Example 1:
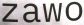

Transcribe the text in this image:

zawo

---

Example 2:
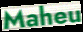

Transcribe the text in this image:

Maheu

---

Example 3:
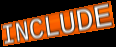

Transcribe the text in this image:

INCLUDE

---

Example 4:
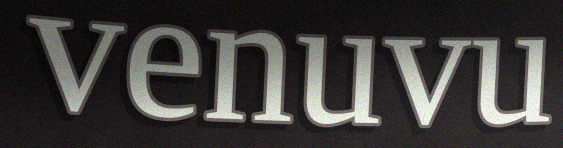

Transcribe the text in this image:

venuvu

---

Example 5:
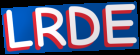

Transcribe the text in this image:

LRDE